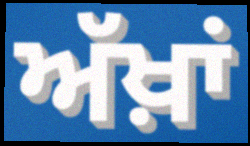
ਅੱਖ਼ਾਂ